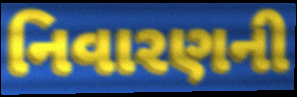
નિવારણની